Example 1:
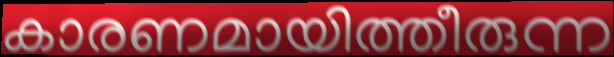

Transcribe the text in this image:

കാരണമായിത്തീരുന്ന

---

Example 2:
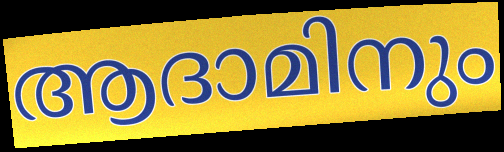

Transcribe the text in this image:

ആദാമിനും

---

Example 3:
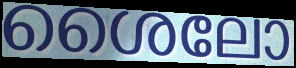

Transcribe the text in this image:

ശൈലോ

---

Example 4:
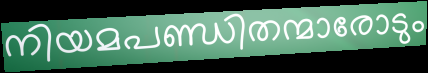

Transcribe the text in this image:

നിയമപണ്ഡിതന്മാരോടും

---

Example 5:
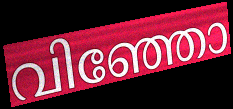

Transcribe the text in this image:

വിഞ്ഞോ